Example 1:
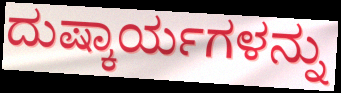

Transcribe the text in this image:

ದುಷ್ಕಾರ್ಯಗಳನ್ನು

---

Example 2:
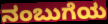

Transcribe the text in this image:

ನಂಬುಗೆಯ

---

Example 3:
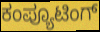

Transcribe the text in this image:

ಕಂಪ್ಯೂಟಿಂಗ್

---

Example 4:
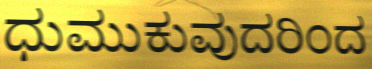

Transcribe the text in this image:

ಧುಮುಕುವುದರಿಂದ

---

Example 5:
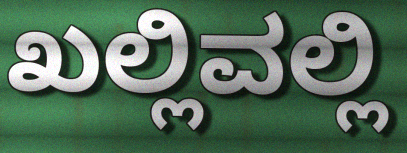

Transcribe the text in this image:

ಖಲ್ಲಿವಲ್ಲಿ